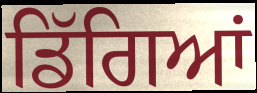
ਡਿੱਗਿਆਂ